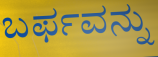
ಬರ್ಫವನ್ನು